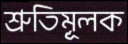
শ্রুতিমূলক